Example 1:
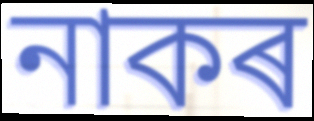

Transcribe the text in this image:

নাকৰ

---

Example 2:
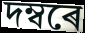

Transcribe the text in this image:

দম্বৰে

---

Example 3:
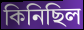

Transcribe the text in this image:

কিনিছিল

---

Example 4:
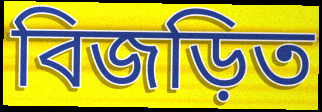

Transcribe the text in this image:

বিজড়িত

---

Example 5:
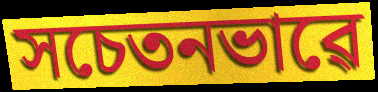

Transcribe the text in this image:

সচেতনভাৱে